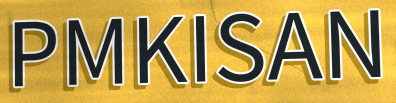
PMKISAN